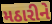
મઠારીને